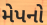
મેપનો